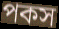
পকস